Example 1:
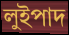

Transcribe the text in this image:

লুইপাদ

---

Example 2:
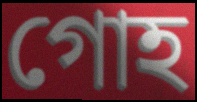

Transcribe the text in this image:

গোহ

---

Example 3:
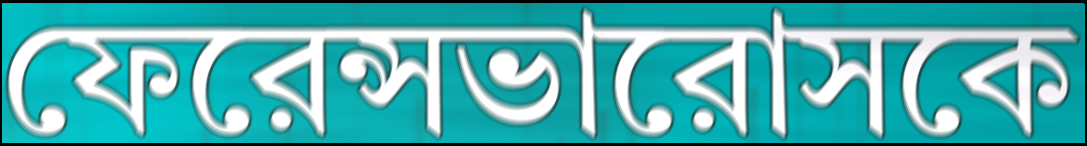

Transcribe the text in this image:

ফেরেন্সভারোসকে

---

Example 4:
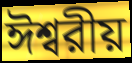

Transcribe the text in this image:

ঈশ্বরীয়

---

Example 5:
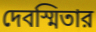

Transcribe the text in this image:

দেবস্মিতার